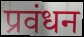
प्रवंधन